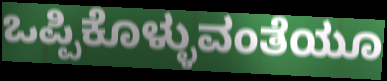
ಒಪ್ಪಿಕೊಳ್ಳುವಂತೆಯೂ